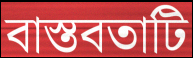
বাস্তবতাটি